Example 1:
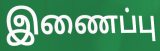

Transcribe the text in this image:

இணைப்பு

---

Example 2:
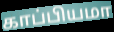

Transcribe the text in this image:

காப்பியமா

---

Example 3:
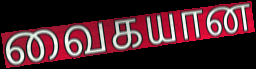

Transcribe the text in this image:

வைகயான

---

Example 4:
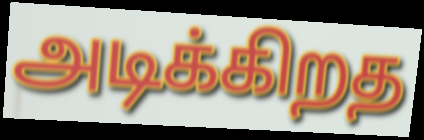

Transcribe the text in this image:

அடிக்கிறத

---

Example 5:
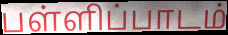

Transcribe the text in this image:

பள்ளிப்பாடம்